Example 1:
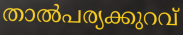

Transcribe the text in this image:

താൽപര്യക്കുറവ്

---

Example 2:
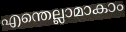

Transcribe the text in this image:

എന്തെല്ലാമാകാം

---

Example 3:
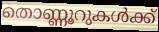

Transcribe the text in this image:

തൊണ്ണൂറുകൾക്ക്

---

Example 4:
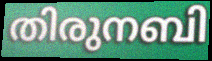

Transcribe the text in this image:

തിരുനബി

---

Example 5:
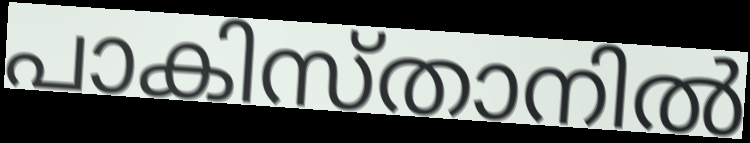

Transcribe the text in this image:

പാകിസ്താനിൽ